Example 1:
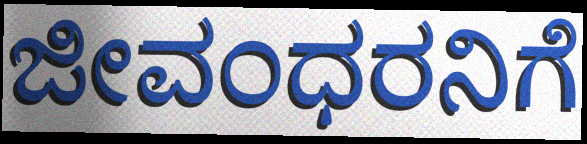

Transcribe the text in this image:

ಜೀವಂಧರನಿಗೆ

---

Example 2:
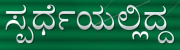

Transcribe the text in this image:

ಸ್ಪರ್ಧೆಯಲ್ಲಿದ್ದ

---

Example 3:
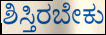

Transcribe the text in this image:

ಶಿಸ್ತಿರಬೇಕು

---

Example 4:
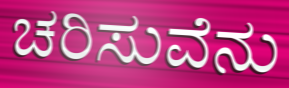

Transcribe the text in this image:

ಚರಿಸುವೆನು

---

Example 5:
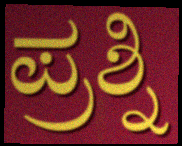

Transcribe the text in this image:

ಪ್ರಶ್ನಿ